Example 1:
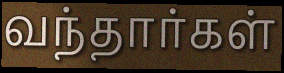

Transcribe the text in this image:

வந்தார்கள்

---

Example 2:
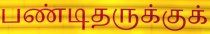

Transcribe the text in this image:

பண்டிதருக்குக்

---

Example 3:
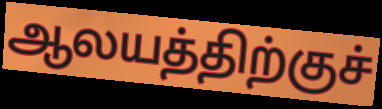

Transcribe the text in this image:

ஆலயத்திற்குச்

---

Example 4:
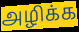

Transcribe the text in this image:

அழிக்க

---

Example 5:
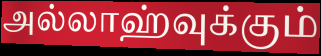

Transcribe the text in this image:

அல்லாஹ்வுக்கும்